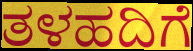
ತಳಹದಿಗೆ